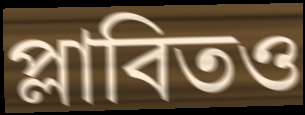
প্লাবিতও